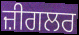
ਜ਼ੀਗਲਰ